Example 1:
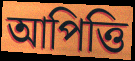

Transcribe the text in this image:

আপিত্তি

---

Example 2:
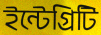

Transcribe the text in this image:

ইন্টেগ্রিটি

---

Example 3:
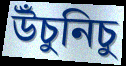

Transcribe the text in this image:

উঁচুনিচু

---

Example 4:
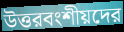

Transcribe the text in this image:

উত্তরবংশীয়দের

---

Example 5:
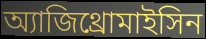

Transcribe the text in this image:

অ্যাজিথ্রোমাইসিন